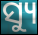
ସ୍ୟୁ